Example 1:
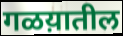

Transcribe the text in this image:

गळय़ातील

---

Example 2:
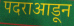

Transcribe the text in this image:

पदराआडून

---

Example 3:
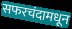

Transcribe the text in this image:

सफरचंदामधून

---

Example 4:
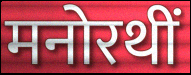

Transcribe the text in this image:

मनोरथीं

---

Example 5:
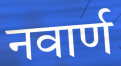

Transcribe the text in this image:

नवार्ण